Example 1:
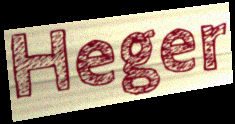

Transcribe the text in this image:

Heger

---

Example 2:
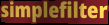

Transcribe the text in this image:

simplefilter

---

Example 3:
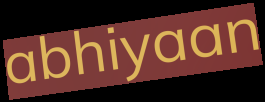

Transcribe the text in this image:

abhiyaan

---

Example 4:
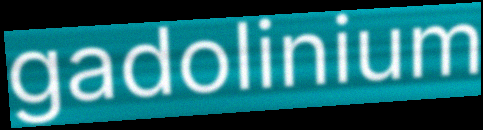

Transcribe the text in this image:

gadolinium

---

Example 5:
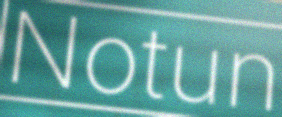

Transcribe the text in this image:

Notun